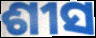
ଶୀସ